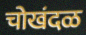
चोखंदळ